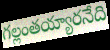
గల్లంతయ్యారనేది